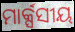
ମାର୍କ୍ସସୀୟ